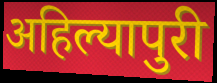
अहिल्यापुरी